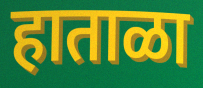
हाताळा